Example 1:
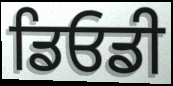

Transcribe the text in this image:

ਡਿਓਡੀ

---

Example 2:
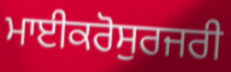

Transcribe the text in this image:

ਮਾਈਕਰੋਸੁਰਜਰੀ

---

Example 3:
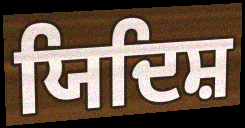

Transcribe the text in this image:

ਯਿਦਿਸ਼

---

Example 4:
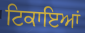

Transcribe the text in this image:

ਟਿਕਾਇਆਂ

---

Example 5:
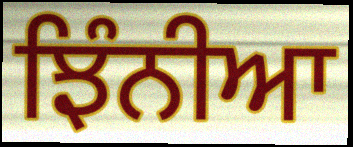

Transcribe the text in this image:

ਝਿੰਨੀਆ